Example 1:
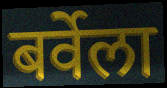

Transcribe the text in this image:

बर्वेला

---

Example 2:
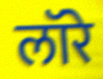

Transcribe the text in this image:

लॉरे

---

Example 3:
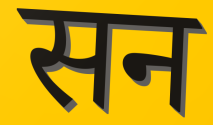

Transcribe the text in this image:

सन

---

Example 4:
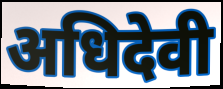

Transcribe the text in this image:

अधिदेवी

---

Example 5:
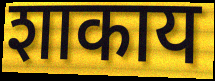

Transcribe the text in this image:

शाकाय